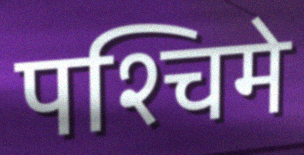
पश्चिमे